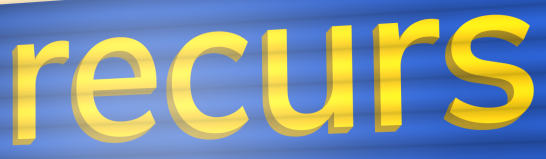
recurs